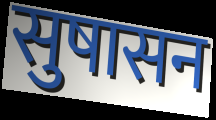
सुषासन